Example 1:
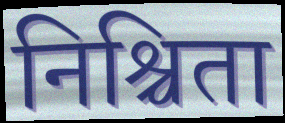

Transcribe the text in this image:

निश्चिता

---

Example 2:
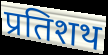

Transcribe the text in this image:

प्रतिशथ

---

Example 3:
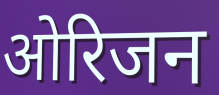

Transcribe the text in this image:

ओरिजन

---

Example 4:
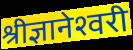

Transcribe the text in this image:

श्रीज्ञानेश्वरी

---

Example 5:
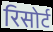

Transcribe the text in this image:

रिसोर्ट